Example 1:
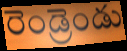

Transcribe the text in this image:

రెండ్రెండు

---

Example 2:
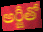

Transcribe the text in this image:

అర్జీతో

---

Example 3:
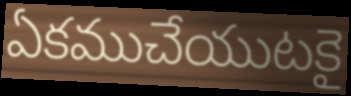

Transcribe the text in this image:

ఏకముచేయుటకై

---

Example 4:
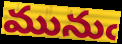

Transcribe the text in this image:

మునుఁ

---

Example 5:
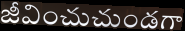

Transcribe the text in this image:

జీవించుచుండగా